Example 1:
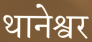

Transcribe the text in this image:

थानेश्वर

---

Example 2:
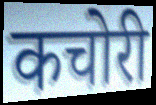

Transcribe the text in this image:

कचोरी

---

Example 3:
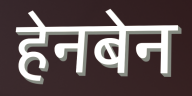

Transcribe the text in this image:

हेनबेन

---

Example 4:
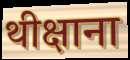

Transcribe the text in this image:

थीक्षाना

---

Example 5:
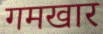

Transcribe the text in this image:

गमखार